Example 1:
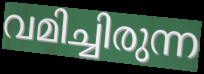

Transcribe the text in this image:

വമിച്ചിരുന്ന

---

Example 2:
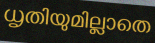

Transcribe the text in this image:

ധൃതിയുമില്ലാതെ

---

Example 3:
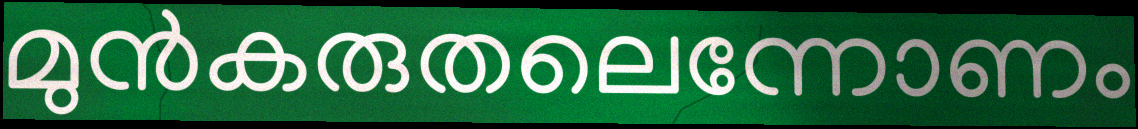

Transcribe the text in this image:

മുൻകരുതലെന്നോണം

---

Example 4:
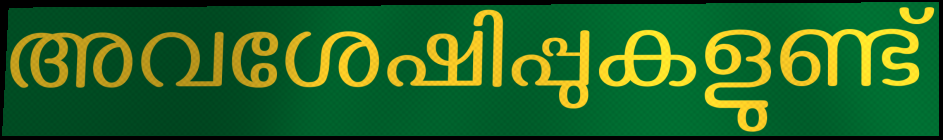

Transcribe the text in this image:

അവശേഷിപ്പുകളുണ്ട്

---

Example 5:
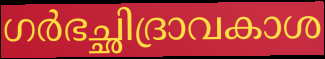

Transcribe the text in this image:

ഗർഭച്ഛിദ്രാവകാശ